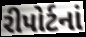
રીપોર્ટનાં